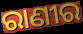
ରାଣୀର